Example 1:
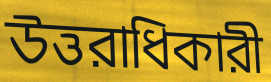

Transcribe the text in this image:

উত্তরাধিকারী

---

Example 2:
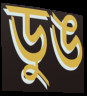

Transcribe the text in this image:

ডুঙ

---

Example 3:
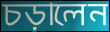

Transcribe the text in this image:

চড়ালেন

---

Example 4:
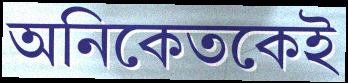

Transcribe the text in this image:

অনিকেতকেই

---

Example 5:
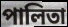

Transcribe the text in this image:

পালিতা